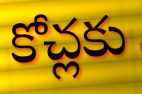
కోచ్లకు